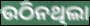
ଉଠିନଥିଲା